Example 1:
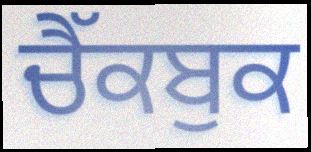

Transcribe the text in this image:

ਚੈੱਕਬੁਕ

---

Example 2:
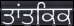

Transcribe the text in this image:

ਤਾਂਤਕਿਕ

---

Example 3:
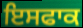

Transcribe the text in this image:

ਇਸਫਾਕ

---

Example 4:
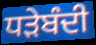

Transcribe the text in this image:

ਧੜੇਬੰਦੀ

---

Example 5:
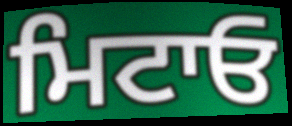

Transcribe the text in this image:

ਮਿਟਾਓ